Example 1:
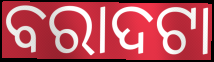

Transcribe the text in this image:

ବରାଦଟା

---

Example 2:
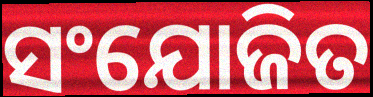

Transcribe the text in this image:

ସଂଯୋଜିତ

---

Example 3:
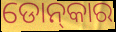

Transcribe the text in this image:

ଡୋନ୍‍କାର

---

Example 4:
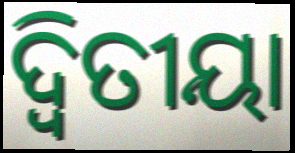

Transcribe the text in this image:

ଦ୍ବିତୀୟା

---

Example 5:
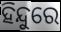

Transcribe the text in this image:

ହିନ୍ଦୁରେ